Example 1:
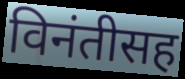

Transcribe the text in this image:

विनंतीसह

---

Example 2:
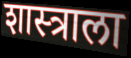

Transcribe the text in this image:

शास्त्राला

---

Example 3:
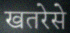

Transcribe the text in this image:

खतरेसे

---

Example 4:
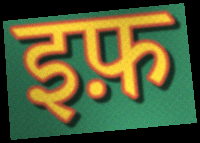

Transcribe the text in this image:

इफ़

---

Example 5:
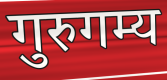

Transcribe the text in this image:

गुरुगम्य